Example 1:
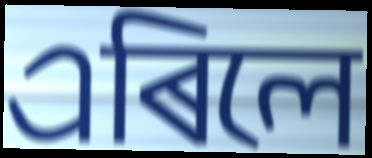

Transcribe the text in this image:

এৰিলে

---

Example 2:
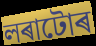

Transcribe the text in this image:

লৰাটোৰ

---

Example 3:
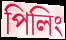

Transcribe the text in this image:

পিলিং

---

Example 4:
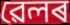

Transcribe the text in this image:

ৱেলৰ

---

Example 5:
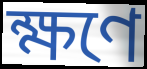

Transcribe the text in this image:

ক্ষণে